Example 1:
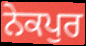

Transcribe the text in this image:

ਨੇਕਪੁਰ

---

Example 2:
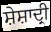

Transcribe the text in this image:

ਸ਼ੇਸ਼ਾਦ੍ਰੀ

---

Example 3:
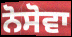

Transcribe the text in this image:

ਨੋਸੋਵਾ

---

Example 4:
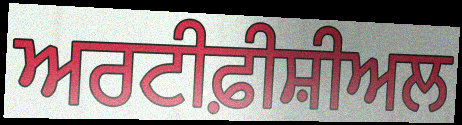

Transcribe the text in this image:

ਅਰਟੀਫ਼ੀਸ਼ੀਅਲ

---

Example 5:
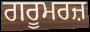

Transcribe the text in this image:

ਗਰੂਮਰਜ਼